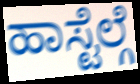
ಹಾಸ್ಟೆಲ್ಗೆ